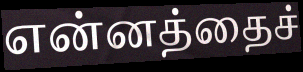
என்னத்தைச்